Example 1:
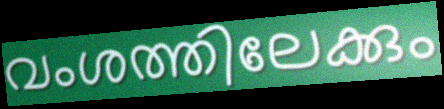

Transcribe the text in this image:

വംശത്തിലേക്കും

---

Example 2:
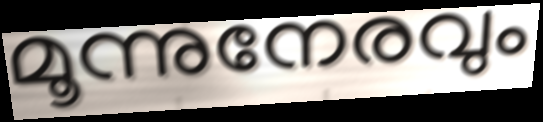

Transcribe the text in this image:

മൂന്നുനേരവും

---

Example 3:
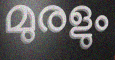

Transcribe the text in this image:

മുരളും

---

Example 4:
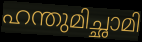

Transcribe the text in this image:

ഹന്തുമിച്ഛാമി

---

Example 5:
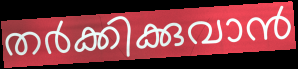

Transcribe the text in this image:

തർക്കിക്കുവാൻ